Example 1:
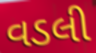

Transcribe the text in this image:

વડલી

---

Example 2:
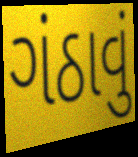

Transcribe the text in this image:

ગંઠાવું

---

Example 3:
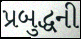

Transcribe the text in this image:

પ્રબુદ્ધની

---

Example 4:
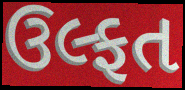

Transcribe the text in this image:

ઉલ્ફત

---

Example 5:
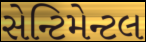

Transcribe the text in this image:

સેન્ટિમેન્ટલ